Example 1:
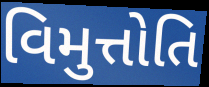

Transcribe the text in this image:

વિમુત્તોતિ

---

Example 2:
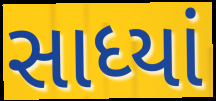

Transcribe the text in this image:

સાધ્યાં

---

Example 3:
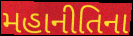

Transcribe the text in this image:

મહાનીતિના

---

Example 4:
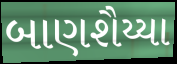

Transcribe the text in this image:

બાણશૈય્યા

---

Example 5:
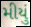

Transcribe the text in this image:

મીયું